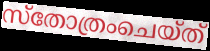
സ്തോത്രംചെയ്ത്